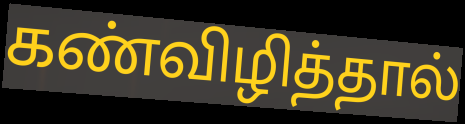
கண்விழித்தால்